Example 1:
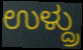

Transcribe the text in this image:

ಉಳ್ದ್ರು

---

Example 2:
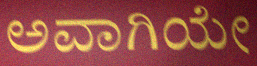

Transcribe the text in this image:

ಅವಾಗಿಯೇ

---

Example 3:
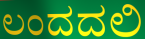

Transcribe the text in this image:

ಲಂದದಲಿ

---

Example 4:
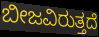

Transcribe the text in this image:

ಬೀಜವಿರುತ್ತದೆ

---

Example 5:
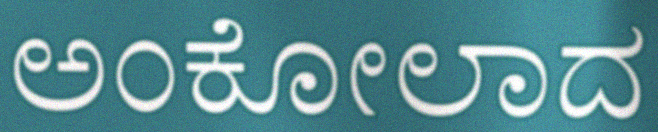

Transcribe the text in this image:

ಅಂಕೋಲಾದ